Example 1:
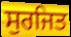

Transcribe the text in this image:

ਸੁਰਜਿਤ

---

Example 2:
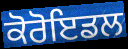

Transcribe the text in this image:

ਕੋਰੋਇਡਲ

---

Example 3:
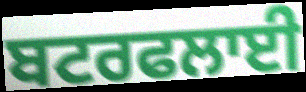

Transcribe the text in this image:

ਬਟਰਫਲਾਈ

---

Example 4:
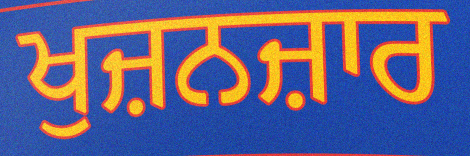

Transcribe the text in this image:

ਖੁਜ਼ਨਜ਼ਾਰ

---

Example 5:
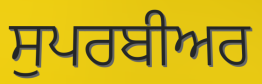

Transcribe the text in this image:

ਸੁਪਰਬੀਅਰ